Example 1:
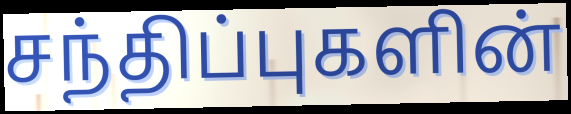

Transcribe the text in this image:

சந்திப்புகளின்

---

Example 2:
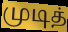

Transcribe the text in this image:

முடித்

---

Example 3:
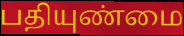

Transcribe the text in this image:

பதியுண்மை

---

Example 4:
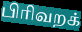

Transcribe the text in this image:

பிரிவறக்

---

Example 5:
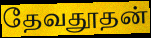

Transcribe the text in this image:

தேவதூதன்